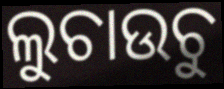
ଲୁଚାଉଚୁ